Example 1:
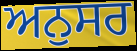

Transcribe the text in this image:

ਅਨੁਸਰ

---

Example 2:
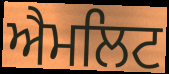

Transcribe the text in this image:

ਐਮਲਿਟ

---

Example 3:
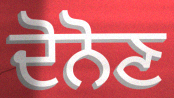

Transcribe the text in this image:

ਦੋਨੋਣ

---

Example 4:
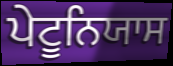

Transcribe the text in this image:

ਪੇਟੂਨਿਯਾਸ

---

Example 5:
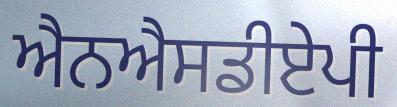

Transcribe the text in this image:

ਐਨਐਸਡੀਏਪੀ